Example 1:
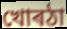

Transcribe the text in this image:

খোৰঠা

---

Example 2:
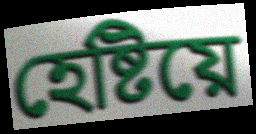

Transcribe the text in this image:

হেষ্টিয়ে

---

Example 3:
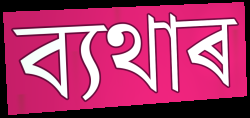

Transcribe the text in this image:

ব্যথাৰ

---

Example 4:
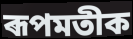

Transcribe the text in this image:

ৰূপমতীক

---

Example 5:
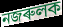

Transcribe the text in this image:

নজৰুলক